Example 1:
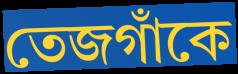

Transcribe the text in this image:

তেজগাঁকে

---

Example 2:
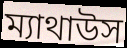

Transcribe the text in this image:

ম্যাথাউস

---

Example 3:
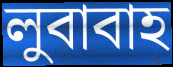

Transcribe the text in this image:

লুবাবাহ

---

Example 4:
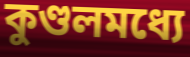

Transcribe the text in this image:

কুণ্ডলমধ্যে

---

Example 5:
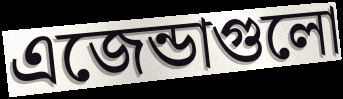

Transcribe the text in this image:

এজেন্ডাগুলো